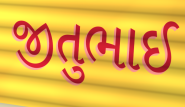
જીતુભાઈ